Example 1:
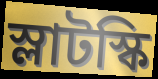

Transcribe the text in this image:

স্লাটস্কি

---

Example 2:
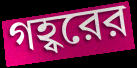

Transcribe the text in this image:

গহ্বরের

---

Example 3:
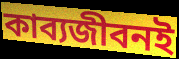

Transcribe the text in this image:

কাব্যজীবনই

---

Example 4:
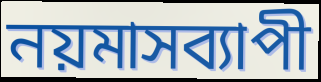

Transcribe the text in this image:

নয়মাসব্যাপী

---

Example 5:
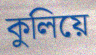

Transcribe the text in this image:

কুলিয়ে